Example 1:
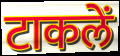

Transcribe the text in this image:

टाकलें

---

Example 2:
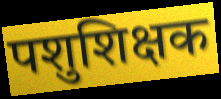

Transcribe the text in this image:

पशुशिक्षक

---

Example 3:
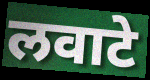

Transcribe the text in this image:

लवाटे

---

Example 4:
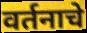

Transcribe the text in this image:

वर्तनाचे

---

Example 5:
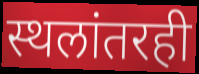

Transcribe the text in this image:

स्थलांतरही